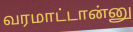
வரமாட்டான்னு